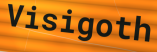
Visigoth